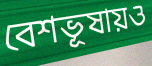
বেশভূষায়ও